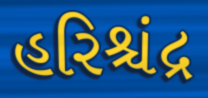
હરિશ્ચંદ્ર